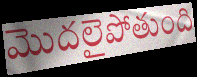
మొదలైపోతుంది